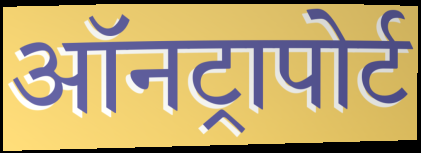
ऑनट्रापोर्ट